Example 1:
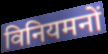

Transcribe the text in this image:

विनियमनों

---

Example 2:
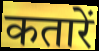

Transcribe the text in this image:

कतारें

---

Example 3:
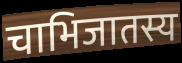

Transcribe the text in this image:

चाभिजातस्य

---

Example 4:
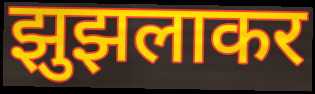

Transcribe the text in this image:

झुझलाकर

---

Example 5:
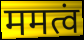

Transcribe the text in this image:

ममत्वं